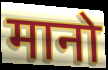
मानो